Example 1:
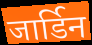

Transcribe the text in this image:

जार्डिन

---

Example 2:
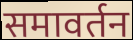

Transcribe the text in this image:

समावर्तन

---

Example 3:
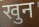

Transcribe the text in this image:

खुन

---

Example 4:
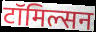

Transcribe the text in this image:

टॉमिल्सन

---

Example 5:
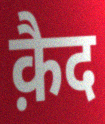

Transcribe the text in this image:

क़ैद